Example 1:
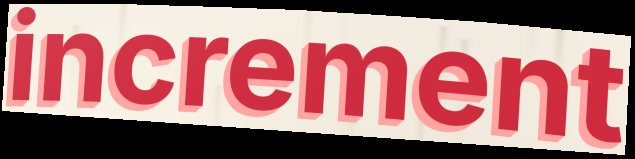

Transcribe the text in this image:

increment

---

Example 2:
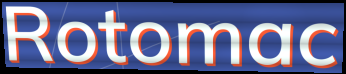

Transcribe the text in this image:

Rotomac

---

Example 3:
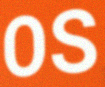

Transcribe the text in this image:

OS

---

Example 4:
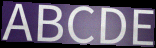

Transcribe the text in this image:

ABCDE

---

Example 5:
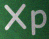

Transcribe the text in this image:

Xp